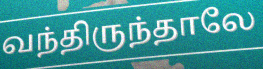
வந்திருந்தாலே